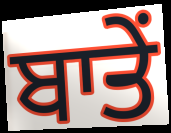
ਬਾਤੇਂ